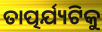
ତାତ୍ପର୍ଯ୍ୟଟିକୁ